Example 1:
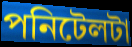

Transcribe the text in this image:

পনিটেলটা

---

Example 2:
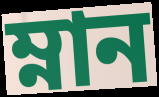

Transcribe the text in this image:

ম্নান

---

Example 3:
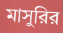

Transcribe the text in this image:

মাসুরির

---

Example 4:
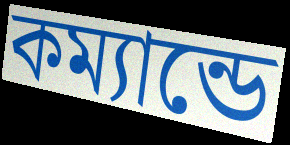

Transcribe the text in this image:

কম্যান্ডে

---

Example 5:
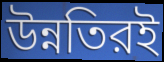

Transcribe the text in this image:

উন্নতিরই